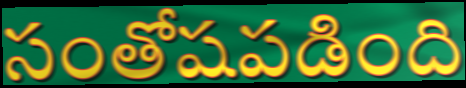
సంతోషపడింది